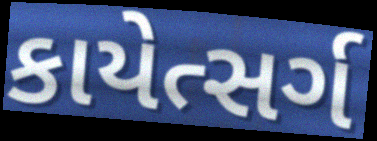
કાયેત્સર્ગ